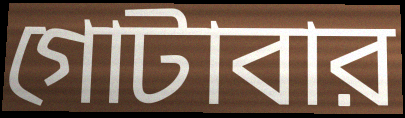
গোটাবার